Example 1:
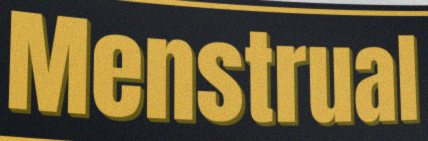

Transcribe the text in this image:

Menstrual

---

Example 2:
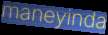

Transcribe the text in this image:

maneyinda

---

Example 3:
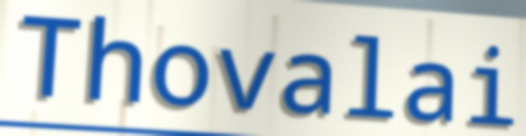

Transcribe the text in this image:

Thovalai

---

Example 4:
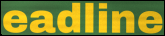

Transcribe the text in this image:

eadline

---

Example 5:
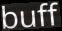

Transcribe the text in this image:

buff